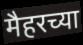
मैहरच्या